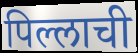
पिल्लाची